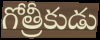
గోత్రీకుడు